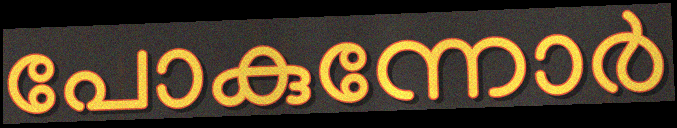
പോകുന്നോർ